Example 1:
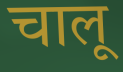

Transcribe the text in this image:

चालू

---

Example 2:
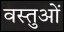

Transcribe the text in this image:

वस्‍तुओं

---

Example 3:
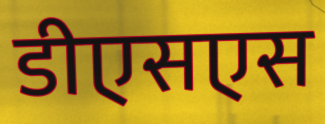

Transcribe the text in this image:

डीएसएस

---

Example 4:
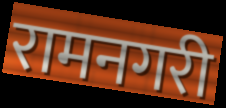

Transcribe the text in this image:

रामनगरी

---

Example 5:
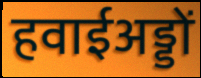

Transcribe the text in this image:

हवाईअड्डों